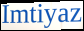
Imtiyaz